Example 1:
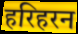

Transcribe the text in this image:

हरिहरन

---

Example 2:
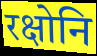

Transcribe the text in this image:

रक्षोनि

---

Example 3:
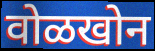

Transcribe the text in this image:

वोळखोन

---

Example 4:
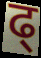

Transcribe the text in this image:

ढ्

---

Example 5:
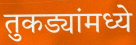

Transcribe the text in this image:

तुकड्यांमध्ये